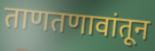
ताणतणावांतून